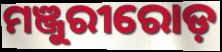
ମଞ୍ଜୁରୀରୋଡ଼